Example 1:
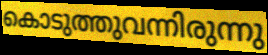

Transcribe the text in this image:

കൊടുത്തുവന്നിരുന്നു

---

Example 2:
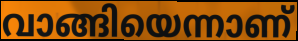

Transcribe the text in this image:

വാങ്ങിയെന്നാണ്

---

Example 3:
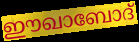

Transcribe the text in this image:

ഈഖാബോദ്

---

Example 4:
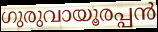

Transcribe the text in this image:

ഗുരുവായൂരപ്പൻ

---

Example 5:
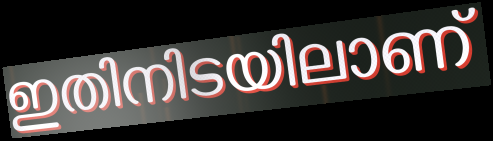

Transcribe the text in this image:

ഇതിനിടയിലാണ്